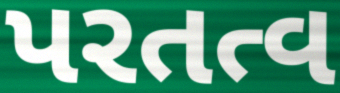
પરતત્વ